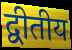
द्वीतीय